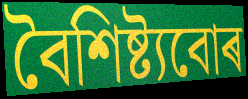
বৈশিষ্ট্যবোৰ